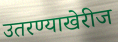
उतरण्याखेरीज